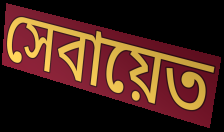
সেবায়েত